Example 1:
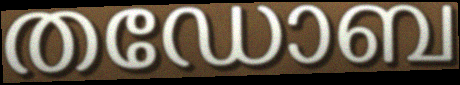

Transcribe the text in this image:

തഡോബ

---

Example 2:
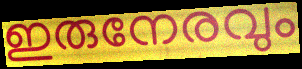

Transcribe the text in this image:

ഇരുനേരവും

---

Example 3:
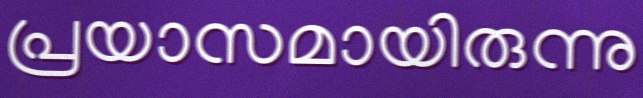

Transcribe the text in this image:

പ്രയാസമായിരുന്നു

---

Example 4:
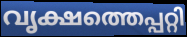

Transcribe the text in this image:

വൃക്ഷത്തെപ്പറ്റി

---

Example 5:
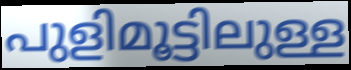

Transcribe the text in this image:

പുളിമൂട്ടിലുള്ള